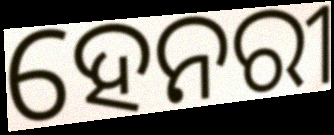
ହେନରୀ